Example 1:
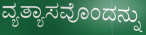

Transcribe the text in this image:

ವ್ಯತ್ಯಾಸವೊಂದನ್ನು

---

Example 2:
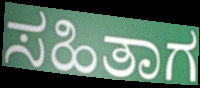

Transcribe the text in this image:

ಸಹಿತಾಗ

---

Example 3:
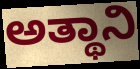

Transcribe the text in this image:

ಅತ್ಥಾನಿ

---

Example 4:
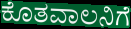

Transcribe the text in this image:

ಕೊತವಾಲನಿಗೆ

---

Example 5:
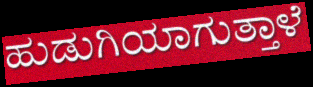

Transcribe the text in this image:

ಹುಡುಗಿಯಾಗುತ್ತಾಳೆ